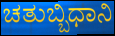
ಚತುಬ್ಬಿಧಾನಿ